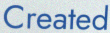
Created